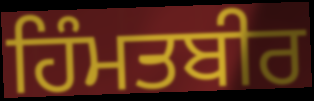
ਹਿੰਮਤਬੀਰ